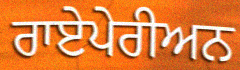
ਰਾਏਪੇਰੀਅਨ